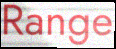
Range